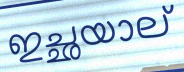
ഇച്ഛയാല്